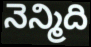
నెన్మిది